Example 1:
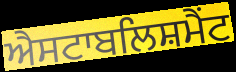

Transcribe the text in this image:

ਐਸਟਾਬਲਿਸ਼ਮੈਂਟ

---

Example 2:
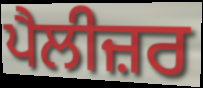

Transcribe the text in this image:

ਪੈਲੀਜ਼ਰ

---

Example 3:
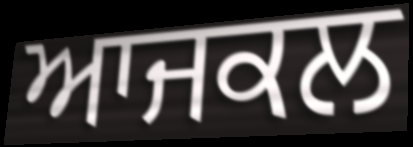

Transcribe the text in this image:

ਆਜਕਲ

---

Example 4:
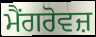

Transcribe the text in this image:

ਮੈਂਗਰੋਵਜ਼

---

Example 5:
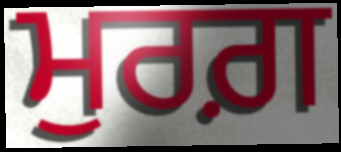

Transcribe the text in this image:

ਮੁਰਗ਼